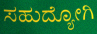
ಸಹುದ್ಯೋಗಿ